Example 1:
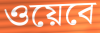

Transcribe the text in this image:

ওয়েবে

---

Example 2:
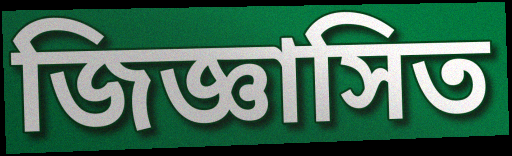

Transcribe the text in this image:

জিজ্ঞাসিত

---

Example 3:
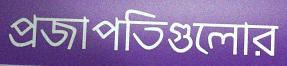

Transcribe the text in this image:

প্রজাপতিগুলোর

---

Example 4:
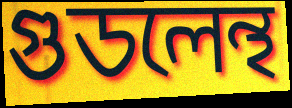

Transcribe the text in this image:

গুডলেন্থ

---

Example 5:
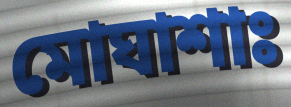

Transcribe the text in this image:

মোঘাশাঃ